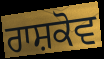
ਰਾਸ਼ਕੋਵ